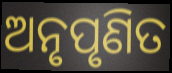
ଅନୃପୃଣିତ